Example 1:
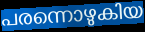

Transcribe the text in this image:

പരന്നൊഴുകിയ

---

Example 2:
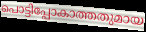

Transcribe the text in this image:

പൊട്ടിപ്പോകാത്തതുമായ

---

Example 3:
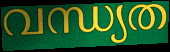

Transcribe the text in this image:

വന്ധ്യത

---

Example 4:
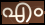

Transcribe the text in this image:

എം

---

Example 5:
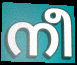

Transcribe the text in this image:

നീ